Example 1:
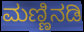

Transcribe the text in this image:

ಮಣ್ಣಿನಡಿ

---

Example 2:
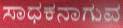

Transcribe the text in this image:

ಸಾಧಕನಾಗುವ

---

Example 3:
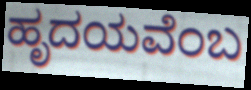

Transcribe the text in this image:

ಹೃದಯವೆಂಬ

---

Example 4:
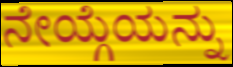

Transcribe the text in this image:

ನೇಯ್ಗೆಯನ್ನು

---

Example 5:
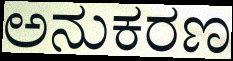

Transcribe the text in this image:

ಅನುಕರಣ